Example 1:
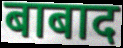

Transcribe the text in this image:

बाबाद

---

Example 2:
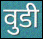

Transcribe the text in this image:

वुडी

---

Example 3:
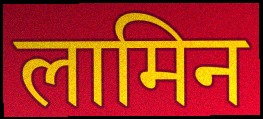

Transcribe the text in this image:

लामिन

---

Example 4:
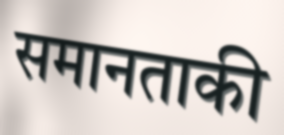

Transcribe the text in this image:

समानताकी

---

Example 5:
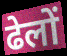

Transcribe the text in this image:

ढेलों